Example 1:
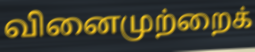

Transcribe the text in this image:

வினைமுற்றைக்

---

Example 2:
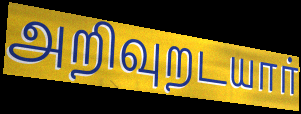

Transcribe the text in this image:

அறிவுறடயார்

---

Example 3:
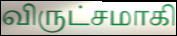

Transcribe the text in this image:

விருட்சமாகி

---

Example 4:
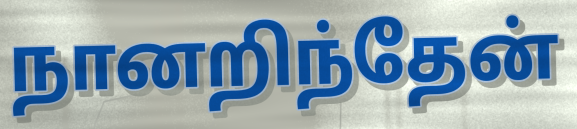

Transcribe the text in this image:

நானறிந்தேன்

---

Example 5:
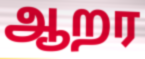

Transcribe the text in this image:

ஆறர